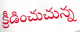
క్రీడించుచున్న